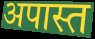
अपास्त